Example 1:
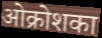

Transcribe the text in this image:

ओक्रोशका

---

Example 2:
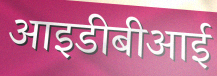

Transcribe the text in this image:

आइडीबीआई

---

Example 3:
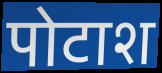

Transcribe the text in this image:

पोटाश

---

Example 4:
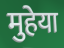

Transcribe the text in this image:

मुहेया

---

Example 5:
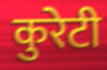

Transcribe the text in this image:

कुरेटी